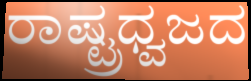
ರಾಷ್ಟ್ರಧ್ವಜದ